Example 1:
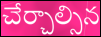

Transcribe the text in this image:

చేర్చాల్సిన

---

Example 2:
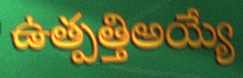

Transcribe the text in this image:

ఉత్పత్తిఅయ్యే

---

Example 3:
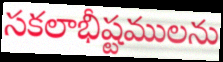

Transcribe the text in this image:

సకలాభీష్టములను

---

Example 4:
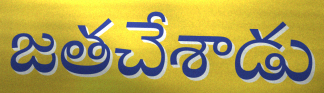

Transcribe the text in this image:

జతచేశాడు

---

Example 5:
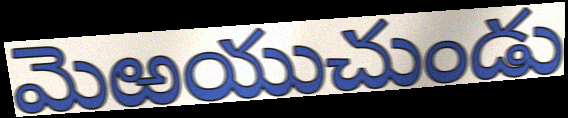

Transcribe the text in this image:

మెఱయుచుండు